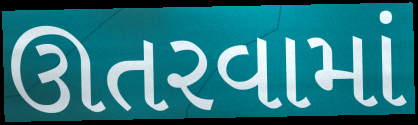
ઊતરવામાં